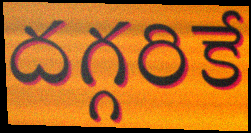
దగ్గరికే